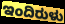
ಇಂದಿರುಳು